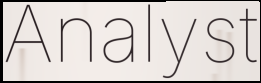
Analyst